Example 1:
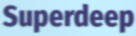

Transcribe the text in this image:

Superdeep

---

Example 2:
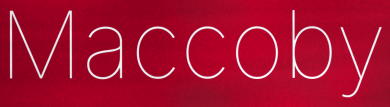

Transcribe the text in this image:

Maccoby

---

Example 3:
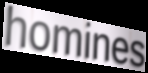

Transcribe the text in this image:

homines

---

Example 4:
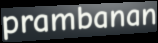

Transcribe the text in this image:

prambanan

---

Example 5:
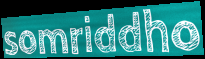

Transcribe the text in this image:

somriddho